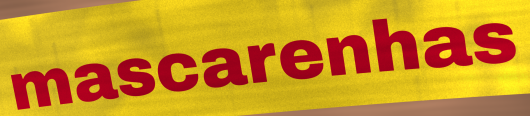
mascarenhas